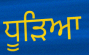
ਧੂੜਿਆ